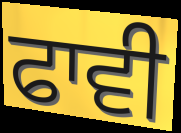
ਫਾਵੀ